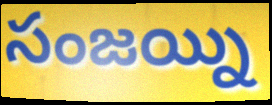
సంజయ్ని